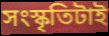
সংস্কৃতিটাই